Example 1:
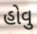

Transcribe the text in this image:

હોવુ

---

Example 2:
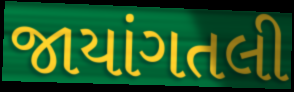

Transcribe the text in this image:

જાયાંગતલી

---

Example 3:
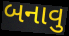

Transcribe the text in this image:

બનાવુ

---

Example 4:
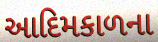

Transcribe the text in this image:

આદિમકાળના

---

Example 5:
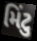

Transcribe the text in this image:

મિંટુ